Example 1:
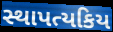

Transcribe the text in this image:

સ્થાપત્યકિય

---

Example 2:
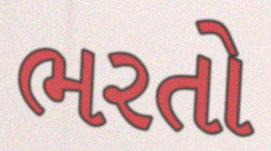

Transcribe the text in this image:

ભરતો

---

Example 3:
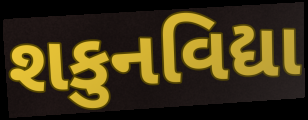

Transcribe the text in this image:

શકુનવિદ્યા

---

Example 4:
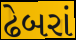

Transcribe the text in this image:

ઢેબરાં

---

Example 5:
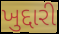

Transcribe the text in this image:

ખુદ્દારી